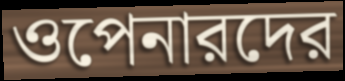
ওপেনারদের